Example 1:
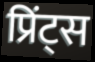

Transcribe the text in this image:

प्रिंट्स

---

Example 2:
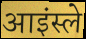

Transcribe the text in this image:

आइंस्ले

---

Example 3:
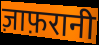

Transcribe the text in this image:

ज़ाफ़रानी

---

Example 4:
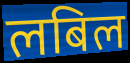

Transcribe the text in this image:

लबिल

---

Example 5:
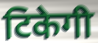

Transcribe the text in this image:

टिकेगी